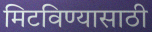
मिटविण्यासाठी